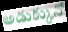
అడుక్కునో